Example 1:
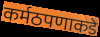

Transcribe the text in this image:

कर्मठपणाकडे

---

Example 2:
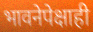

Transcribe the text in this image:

भावनेपेक्षाही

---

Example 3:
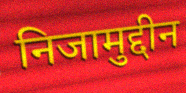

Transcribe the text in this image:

निजामुद्दीन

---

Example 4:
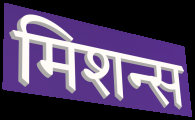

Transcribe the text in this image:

मिशन्स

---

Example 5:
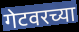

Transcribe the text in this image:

गेटवरच्या